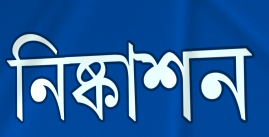
নিষ্কাশন